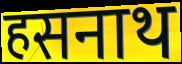
हसनाथ